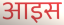
आइस